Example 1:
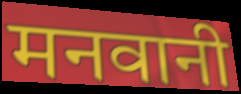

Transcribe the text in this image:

मनवानी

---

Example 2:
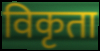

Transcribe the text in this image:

विकृता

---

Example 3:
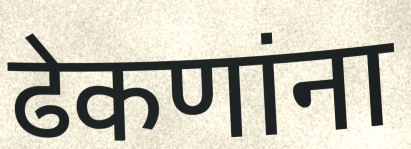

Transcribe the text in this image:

ढेकणांना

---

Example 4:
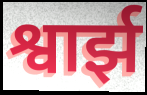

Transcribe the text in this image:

श्वार्झ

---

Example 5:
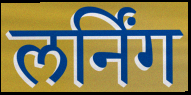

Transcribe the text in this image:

लर्निंग